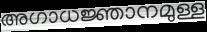
അഗാധജ്ഞാനമുള്ള